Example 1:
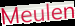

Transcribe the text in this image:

Meulen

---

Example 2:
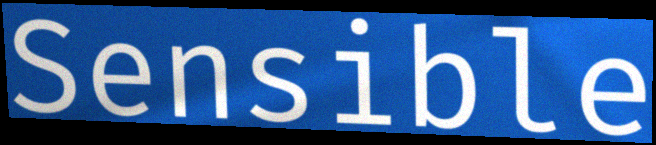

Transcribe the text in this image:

Sensible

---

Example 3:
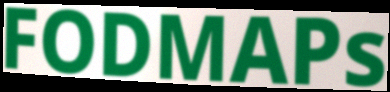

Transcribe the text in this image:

FODMAPs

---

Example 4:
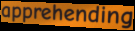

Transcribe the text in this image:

apprehending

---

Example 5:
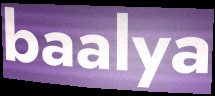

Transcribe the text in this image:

baalya